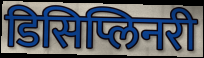
डिसिप्लिनरी